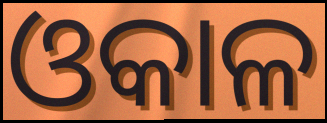
ଓକାଳ